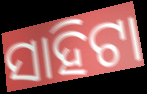
ସାହିଟା